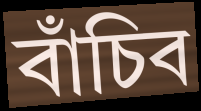
বাঁচিব